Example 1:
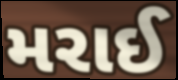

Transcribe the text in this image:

મરાઈ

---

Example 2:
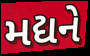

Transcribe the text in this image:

મદ્યને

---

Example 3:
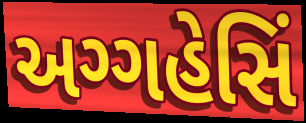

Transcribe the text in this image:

અગ્ગહેસિં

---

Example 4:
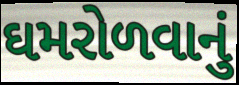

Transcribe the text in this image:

ઘમરોળવાનું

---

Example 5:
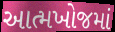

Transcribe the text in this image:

આત્મખોજમાં